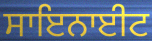
ਸਾਇਨਾਈਟ